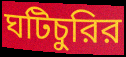
ঘটিচুরির